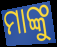
ମାଙ୍କୁ